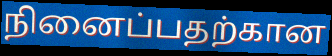
நினைப்பதற்கான